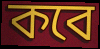
কবে